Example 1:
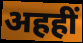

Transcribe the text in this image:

अहहीं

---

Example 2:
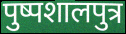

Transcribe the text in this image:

पुष्पशालपुत्र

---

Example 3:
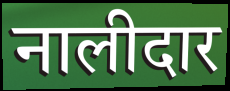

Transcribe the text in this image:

नालीदार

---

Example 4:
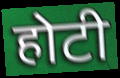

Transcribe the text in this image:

होटी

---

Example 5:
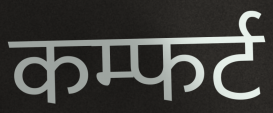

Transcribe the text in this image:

कम्फर्ट